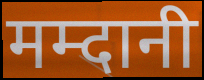
मम्दानी